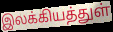
இலக்கியத்துள்